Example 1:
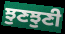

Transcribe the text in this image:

ਝੁਣਝੁਣੀ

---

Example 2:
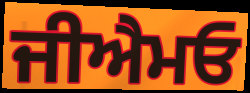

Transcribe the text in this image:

ਜੀਐਮਓ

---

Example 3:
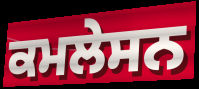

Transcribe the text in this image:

ਕਮਲੇਸਨ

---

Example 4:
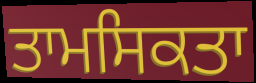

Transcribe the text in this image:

ਤਾਮਸਿਕਤਾ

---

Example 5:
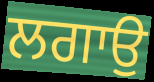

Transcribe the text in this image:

ਲਗਾਉੁ